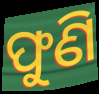
ଫୁଣି